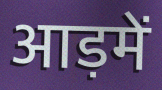
आड़में